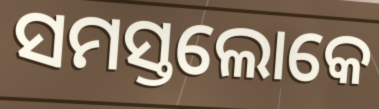
ସମସ୍ତଲୋକେ